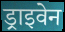
ड्राइवेन